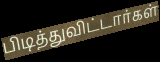
பிடித்துவிட்டார்கள்